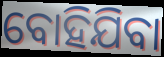
ବୋହିଯିବା